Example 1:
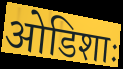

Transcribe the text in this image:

ओडिशाः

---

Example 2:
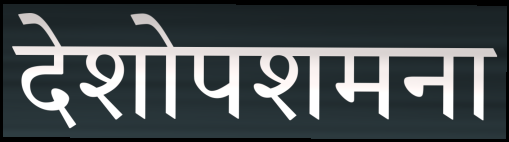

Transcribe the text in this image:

देशोपशमना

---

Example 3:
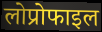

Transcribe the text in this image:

लोप्रोफाइल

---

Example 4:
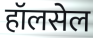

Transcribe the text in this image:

हॉलसेल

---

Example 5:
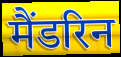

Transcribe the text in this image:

मैंडरिन